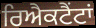
ਰਿਐਕਟੈਂਟਾਂ